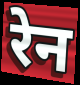
रेन